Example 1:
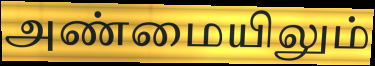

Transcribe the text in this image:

அண்மையிலும்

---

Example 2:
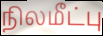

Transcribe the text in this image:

நிலமீட்பு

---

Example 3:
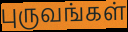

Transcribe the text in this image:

புருவங்கள்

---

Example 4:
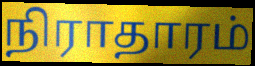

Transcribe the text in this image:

நிராதாரம்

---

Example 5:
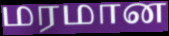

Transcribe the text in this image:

மரமான